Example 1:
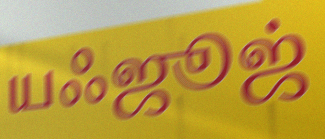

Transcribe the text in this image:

யஃஜூஜ்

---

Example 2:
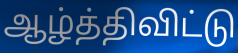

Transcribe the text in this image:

ஆழ்த்திவிட்டு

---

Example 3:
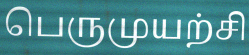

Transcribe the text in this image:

பெருமுயற்சி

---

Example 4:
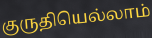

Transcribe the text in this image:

குருதியெல்லாம்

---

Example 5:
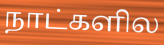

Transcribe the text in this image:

நாட்களில